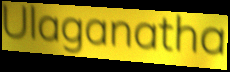
Ulaganatha